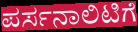
ಪರ್ಸನಾಲಿಟಿಗೆ